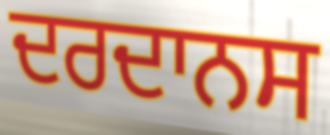
ਦਰਦਾਨਸ